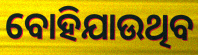
ବୋହିଯାଉଥିବ